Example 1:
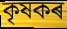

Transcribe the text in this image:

কৃষকৰ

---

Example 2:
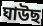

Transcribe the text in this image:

ঘাউছ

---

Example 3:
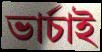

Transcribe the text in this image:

ভাৰ্চাই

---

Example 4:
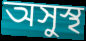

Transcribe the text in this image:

অসুস্থ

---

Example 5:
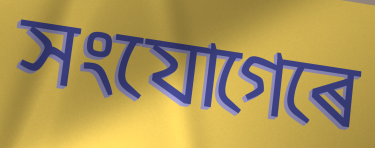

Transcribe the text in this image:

সংযোগেৰে